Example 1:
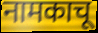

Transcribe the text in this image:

नामकाचू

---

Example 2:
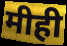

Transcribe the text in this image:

मीही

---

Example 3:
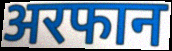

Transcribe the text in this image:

अरफान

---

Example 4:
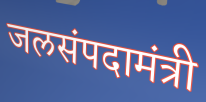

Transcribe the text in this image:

जलसंपदामंत्री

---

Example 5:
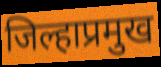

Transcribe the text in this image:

जिल्हाप्रमुख